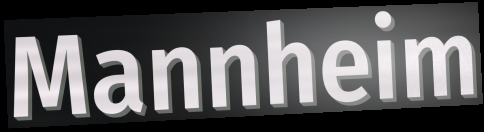
Mannheim